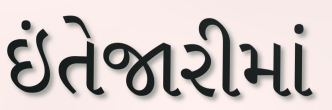
ઇંતેજારીમાં